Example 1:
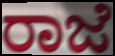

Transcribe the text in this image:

ರಾಜೆ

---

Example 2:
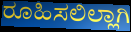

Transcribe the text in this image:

ರೂಹಿಸಲಿಲ್ಲಾಗಿ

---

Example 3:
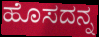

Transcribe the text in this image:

ಹೊಸದನ್ನ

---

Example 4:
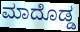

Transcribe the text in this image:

ಮಾದೊಡ್ಡ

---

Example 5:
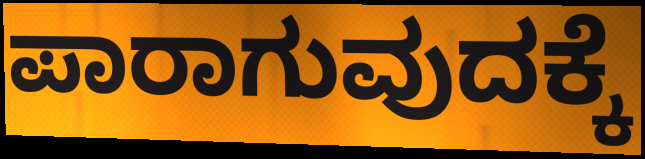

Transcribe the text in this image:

ಪಾರಾಗುವುದಕ್ಕೆ